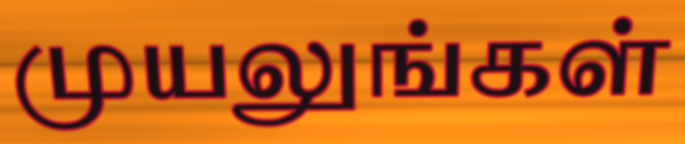
முயலுங்கள்